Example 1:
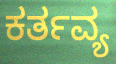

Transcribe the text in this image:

ಕರ್ತವ್ಯ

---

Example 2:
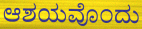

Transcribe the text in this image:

ಆಶಯವೊಂದು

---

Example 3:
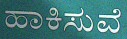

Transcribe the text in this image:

ಹಾಕಿಸುವೆ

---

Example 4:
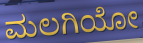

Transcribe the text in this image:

ಮಲಗಿಯೋ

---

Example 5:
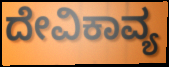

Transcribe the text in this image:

ದೇವಿಕಾವ್ಯ